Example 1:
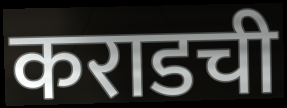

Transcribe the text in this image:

कराडची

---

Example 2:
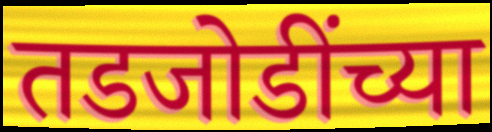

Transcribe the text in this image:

तडजोडींच्या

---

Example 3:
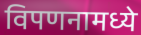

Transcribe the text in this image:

विपणनामध्ये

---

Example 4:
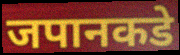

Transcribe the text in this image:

जपानकडे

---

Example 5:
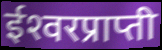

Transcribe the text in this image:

ईश्वरप्राप्ती